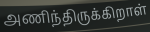
அணிந்திருக்கிறாள்